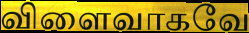
விளைவாகவே